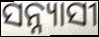
ସନ୍ନ୍ୟାସୀ